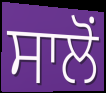
ਸਾਲੋਂ